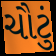
ચૌટું